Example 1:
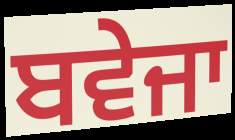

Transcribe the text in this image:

ਬਵੇਜਾ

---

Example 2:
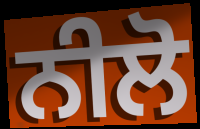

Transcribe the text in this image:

ਨੀਲੋ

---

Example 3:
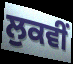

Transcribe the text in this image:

ਲੁਕਵੀਂ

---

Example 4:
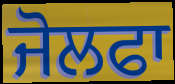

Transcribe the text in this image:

ਜੋਲਫਾ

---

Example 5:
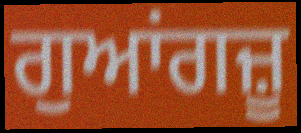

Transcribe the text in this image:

ਗੁਆਂਗਜ਼ੂ